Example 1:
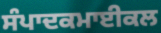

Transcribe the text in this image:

ਸੰਪਾਦਕਮਾਈਕਲ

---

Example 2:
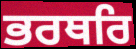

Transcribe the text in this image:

ਭਰਥਰਿ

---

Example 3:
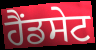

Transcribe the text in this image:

ਹੈਂਡਸੇਟ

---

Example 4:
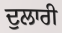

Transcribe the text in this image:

ਦੁਲਾਰੀ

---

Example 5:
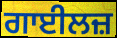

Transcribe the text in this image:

ਗਾਈਲਜ਼